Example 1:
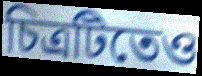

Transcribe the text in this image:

চিত্রটিতেও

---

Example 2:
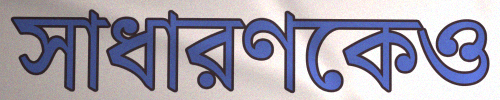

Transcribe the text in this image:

সাধারণকেও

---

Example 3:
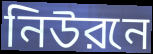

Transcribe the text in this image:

নিউরনে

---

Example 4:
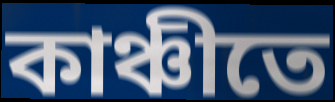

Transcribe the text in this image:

কাঞ্চীতে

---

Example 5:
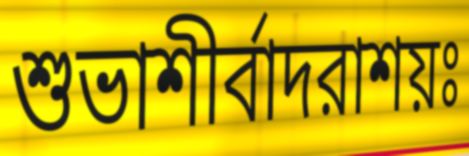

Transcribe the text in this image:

শুভাশীর্বাদরাশয়ঃ